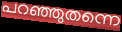
പറഞ്ഞുതന്നെ